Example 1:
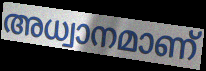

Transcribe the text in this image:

അധ്വാനമാണ്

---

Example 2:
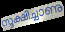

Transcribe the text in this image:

സൂക്ഷിച്ചാണു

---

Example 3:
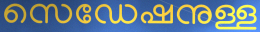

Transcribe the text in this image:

സെഡേഷനുള്ള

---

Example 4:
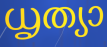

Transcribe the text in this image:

ധൃത്യാ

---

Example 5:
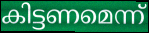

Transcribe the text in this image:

കിട്ടണമെന്ന്